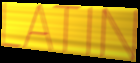
LATIN